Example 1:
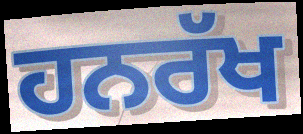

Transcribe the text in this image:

ਹਨਰੱਖ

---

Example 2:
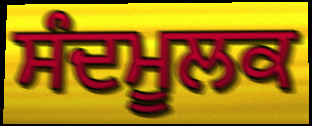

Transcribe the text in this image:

ਸੰਦਮੂਲਕ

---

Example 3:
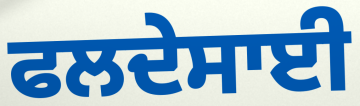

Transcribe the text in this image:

ਫਲਦੇਸਾਈ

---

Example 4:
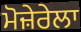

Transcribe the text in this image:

ਮੋਜ਼ੇਰੇਲਾ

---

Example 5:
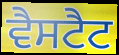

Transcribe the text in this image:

ਵੈਸਟੈਟ